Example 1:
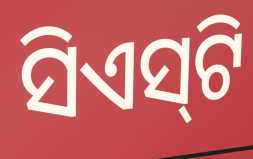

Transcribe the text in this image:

ସିଏସ୍‌ଟି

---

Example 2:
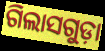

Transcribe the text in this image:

ଗିଲାସଗୁଡ଼ା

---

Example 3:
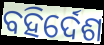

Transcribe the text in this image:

ବହିର୍ଦେଶ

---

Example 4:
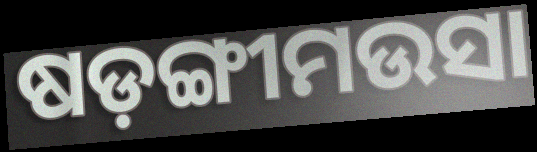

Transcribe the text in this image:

ଷଡ଼ଙ୍ଗୀମଉସା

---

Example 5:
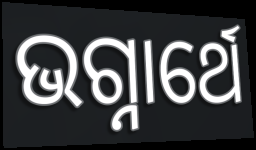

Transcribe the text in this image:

ଭଗ୍ନାର୍ଥେ